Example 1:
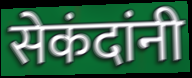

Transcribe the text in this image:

सेकंदांनी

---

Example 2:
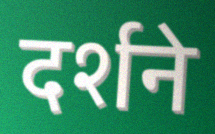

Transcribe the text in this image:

दर्शने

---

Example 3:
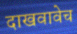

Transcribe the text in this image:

दाखवावेच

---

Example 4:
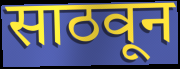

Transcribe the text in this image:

साठवून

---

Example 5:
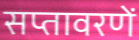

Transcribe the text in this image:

सप्तावरणें